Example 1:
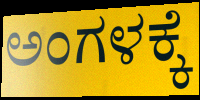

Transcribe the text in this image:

ಅಂಗಳಕ್ಕೆ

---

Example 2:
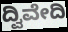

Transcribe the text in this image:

ದ್ವಿವೇದಿ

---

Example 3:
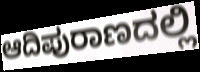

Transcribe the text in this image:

ಆದಿಪುರಾಣದಲ್ಲಿ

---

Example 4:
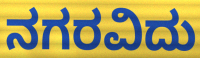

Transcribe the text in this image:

ನಗರವಿದು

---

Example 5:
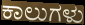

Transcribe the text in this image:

ಕಾಲುಗಳು